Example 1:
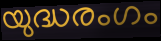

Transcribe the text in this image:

യുദ്ധരംഗം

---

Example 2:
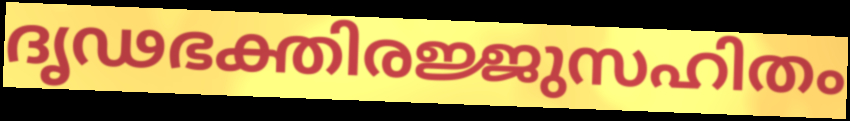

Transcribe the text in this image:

ദൃഢഭക്തിരജ്ജുസഹിതം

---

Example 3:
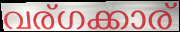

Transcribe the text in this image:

വര്ഗക്കാര്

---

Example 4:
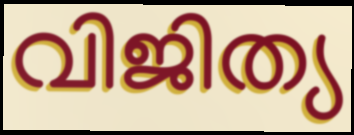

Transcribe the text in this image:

വിജിത്യ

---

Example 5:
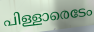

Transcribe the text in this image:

പിള്ളാരെടേം